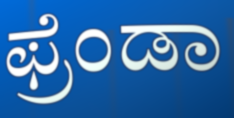
ಫ್ರೆಂಡಾ